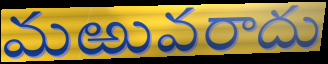
మఱువరాదు